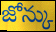
జోన్కు